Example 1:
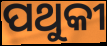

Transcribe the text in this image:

ପଥୁକୀ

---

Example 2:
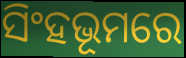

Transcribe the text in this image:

ସିଂହଭୂମରେ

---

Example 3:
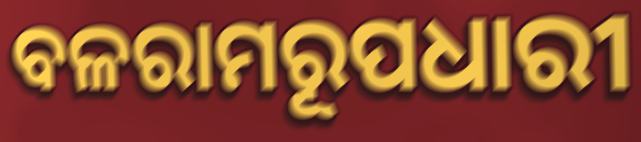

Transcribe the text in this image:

ବଳରାମରୂପଧାରୀ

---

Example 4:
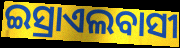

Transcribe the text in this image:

ଇସ୍ରାଏଲବାସୀ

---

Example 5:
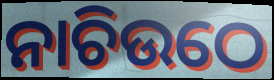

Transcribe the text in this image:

ନାଚିଉଠେ